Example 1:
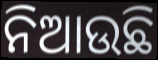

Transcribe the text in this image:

ନିଆଉଛି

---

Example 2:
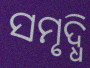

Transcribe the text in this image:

ସମୃଦ୍ଧି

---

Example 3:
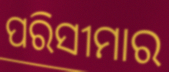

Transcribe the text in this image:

ପରିସୀମାର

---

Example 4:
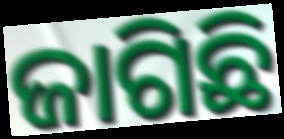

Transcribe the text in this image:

ଜାଗିଛି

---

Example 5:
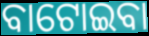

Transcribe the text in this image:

ବାଟୋଇବା